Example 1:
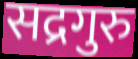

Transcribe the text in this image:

सद्रगुरु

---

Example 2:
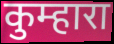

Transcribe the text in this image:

कुम्हारा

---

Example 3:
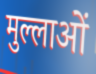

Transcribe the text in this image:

मुल्लाओं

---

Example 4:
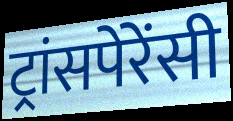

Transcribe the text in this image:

ट्रांसपेरेंसी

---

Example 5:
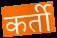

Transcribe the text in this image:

कर्ती